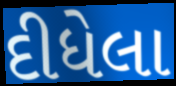
દીધેલા